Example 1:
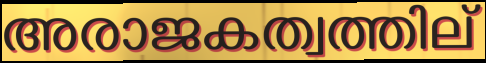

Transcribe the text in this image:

അരാജകത്വത്തില്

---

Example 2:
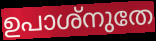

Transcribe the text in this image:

ഉപാശ്നുതേ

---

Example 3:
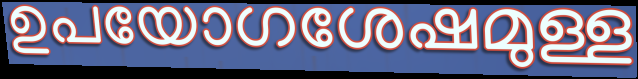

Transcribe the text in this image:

ഉപയോഗശേഷമുള്ള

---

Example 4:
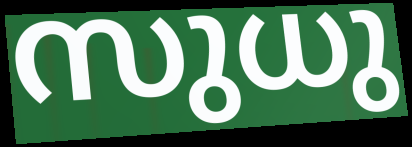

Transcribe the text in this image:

സുധു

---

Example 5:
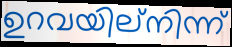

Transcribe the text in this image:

ഉറവയില്നിന്ന്